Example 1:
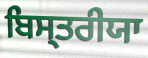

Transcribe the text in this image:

ਬਿਸ੍ਤਰੀਯਾ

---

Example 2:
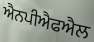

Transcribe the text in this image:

ਐਨਪੀਐਫਐਲ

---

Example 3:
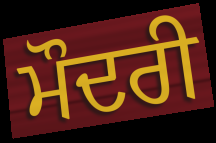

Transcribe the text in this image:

ਮੌਦਰੀ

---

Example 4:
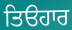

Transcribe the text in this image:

ਤਿੳਹਾਰ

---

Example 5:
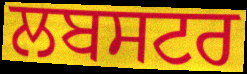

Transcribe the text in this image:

ਲਬਸਟਰ